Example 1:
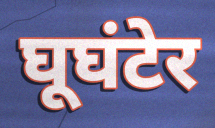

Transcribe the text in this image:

घूघंटेर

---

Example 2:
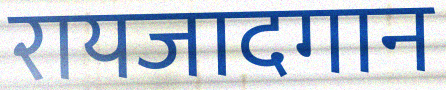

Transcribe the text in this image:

रायजादगान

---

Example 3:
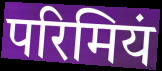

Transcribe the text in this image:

परिमियं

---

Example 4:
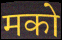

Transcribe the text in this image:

मको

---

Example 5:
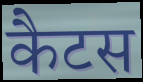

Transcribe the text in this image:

कैटस